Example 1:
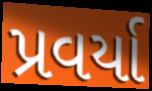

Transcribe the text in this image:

પ્રવર્યા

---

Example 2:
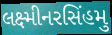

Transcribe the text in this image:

લક્ષ્મીનરસિંહમુ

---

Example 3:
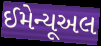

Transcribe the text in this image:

ઈમેન્યૂઅલ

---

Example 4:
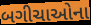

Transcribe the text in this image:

બગીચાઓના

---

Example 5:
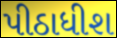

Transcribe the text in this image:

પીઠાધીશ